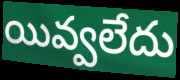
యివ్వలేదు